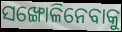
ସଙ୍ଖୋଳିନେବାକୁ